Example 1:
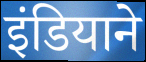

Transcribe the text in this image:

इंडियाने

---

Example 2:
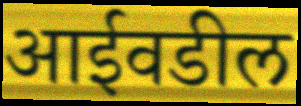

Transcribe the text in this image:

आईवडील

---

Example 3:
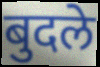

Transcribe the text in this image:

बुदले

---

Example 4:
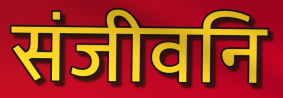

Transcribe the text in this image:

संजीवनि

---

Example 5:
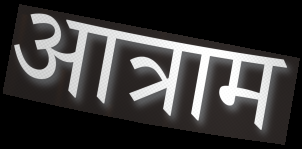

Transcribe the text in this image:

आत्राम